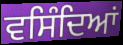
ਵਸਿੰਦਿਆਂ